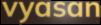
vyasan